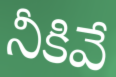
నీకివే